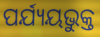
ପର୍ଯ୍ୟୟଭୁକ୍ତ